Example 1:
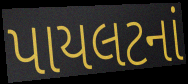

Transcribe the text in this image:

પાયલટનાં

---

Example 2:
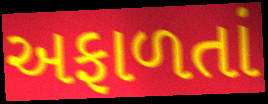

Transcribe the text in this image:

અફાળતાં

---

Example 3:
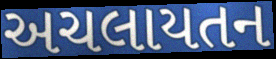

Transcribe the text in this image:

અચલાયતન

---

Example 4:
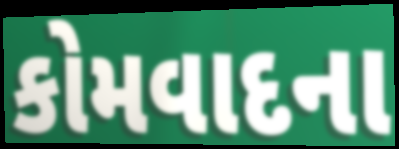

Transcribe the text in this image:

કોમવાદના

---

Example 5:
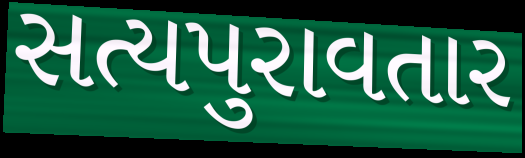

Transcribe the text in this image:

સત્યપુરાવતાર